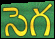
సెగ